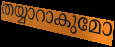
തയ്യാറാകുമോ